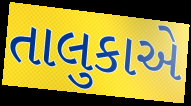
તાલુકાએ